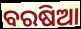
ବରଷିଆ